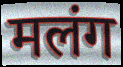
मलंग